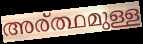
അര്ത്ഥമുള്ള